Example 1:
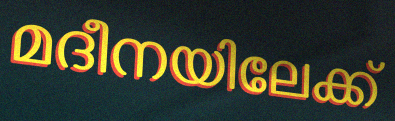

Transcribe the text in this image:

മദീനയിലേക്ക്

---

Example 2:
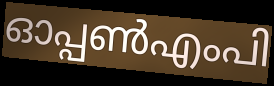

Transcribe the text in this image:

ഓപ്പൺഎംപി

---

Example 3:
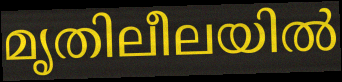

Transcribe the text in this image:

മൃതിലീലയിൽ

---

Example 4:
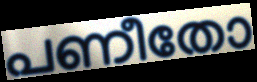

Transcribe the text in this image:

പണീതോ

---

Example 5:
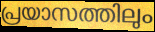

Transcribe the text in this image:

പ്രയാസത്തിലും